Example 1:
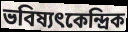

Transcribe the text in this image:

ভবিষ্যৎকেন্দ্রিক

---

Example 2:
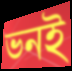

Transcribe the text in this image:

ভনই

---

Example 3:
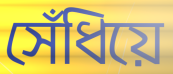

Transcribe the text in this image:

সেঁধিয়ে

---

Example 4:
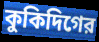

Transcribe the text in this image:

কুকিদিগের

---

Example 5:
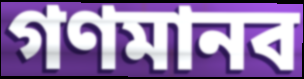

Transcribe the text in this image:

গণমানব